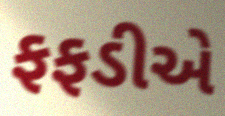
ફફડીએ